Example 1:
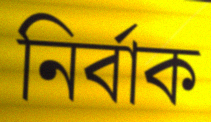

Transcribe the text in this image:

নিৰ্বাক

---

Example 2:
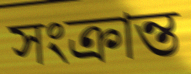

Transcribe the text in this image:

সংক্ৰান্ত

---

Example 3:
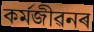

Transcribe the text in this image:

কৰ্মজীৱনৰ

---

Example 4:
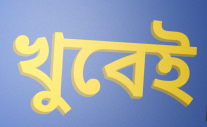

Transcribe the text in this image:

খুবেই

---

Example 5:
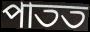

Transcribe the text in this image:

পাতত